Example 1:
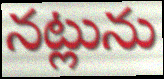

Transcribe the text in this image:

నట్లును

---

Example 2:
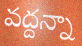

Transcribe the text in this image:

వద్దన్నా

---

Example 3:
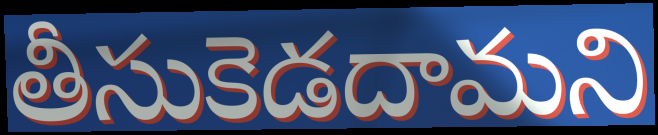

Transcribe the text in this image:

తీసుకెడదామని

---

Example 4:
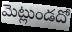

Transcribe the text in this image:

మెట్లుండదో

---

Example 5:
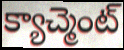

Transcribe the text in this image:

క్యాచ్మెంట్